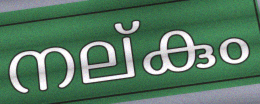
നല്‌കും